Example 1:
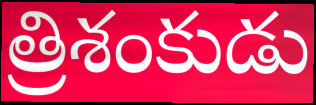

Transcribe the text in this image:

త్రిశంకుడు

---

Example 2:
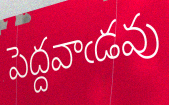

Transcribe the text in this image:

పెద్దవాఁడవు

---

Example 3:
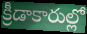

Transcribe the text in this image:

క్రీడాకారుల్లో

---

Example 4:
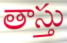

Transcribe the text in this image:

తాస్తు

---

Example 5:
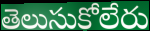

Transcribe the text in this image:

తెలుసుకోలేరు